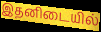
இதனிடையில்